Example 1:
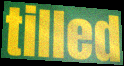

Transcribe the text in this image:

tilled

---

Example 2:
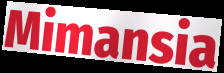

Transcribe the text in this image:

Mimansia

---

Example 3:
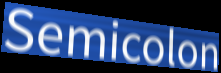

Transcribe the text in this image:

Semicolon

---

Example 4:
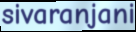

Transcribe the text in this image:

sivaranjani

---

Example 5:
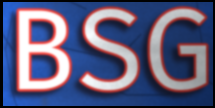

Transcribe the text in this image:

BSG